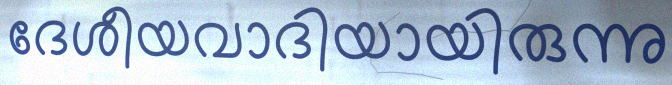
ദേശീയവാദിയായിരുന്നു